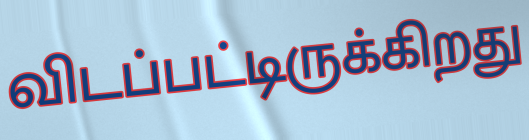
விடப்பட்டிருக்கிறது